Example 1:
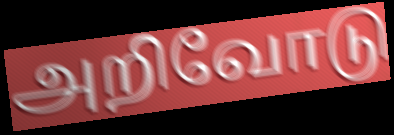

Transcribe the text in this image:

அறிவோடு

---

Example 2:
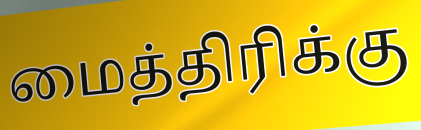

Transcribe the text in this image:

மைத்திரிக்கு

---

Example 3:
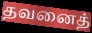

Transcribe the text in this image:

தவனைத்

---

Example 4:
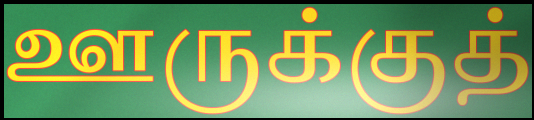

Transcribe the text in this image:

ஊருக்குத்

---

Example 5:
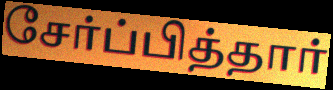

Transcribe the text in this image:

சேர்ப்பித்தார்